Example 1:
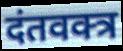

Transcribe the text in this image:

दंतवक्त्र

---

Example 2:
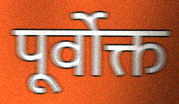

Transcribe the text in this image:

पूर्वोक्त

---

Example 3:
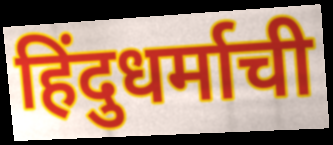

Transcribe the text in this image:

हिंदुधर्माची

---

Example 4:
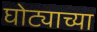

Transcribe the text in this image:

घोट्याच्या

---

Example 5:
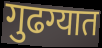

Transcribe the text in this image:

गुढग्यात